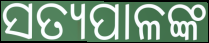
ସତ୍ୟପାଳଙ୍କ